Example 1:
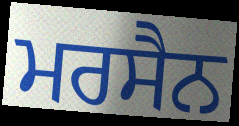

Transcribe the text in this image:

ਮਰਸੈਨ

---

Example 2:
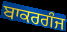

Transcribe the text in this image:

ਬਾਕਰਗੰਜ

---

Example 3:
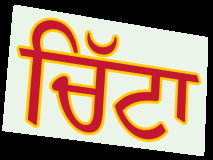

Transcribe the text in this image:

ਚਿੱਟਾ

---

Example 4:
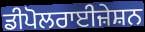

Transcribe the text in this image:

ਡੀਪੋਲਰਾਈਜ਼ੇਸ਼ਨ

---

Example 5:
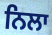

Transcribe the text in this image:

ਨਿਲਾ